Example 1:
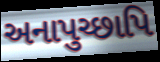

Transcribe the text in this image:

અનાપુચ્છાપિ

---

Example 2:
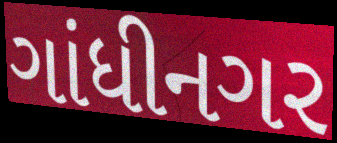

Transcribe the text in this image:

ગાંધીનગર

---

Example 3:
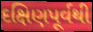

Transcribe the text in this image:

દક્ષિણપૂર્વથી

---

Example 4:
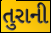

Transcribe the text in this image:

તુરાની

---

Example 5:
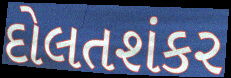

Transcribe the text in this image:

દોલતશંકર